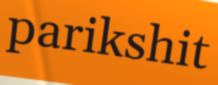
parikshit